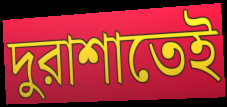
দুরাশাতেই